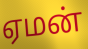
ஏமன்